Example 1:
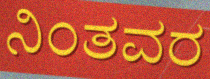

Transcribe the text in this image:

ನಿಂತವರ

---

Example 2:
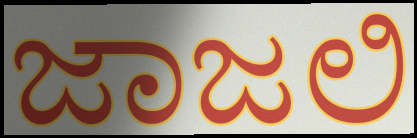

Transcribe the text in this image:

ಜಾಜಲಿ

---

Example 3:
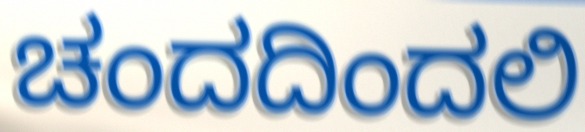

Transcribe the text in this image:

ಚಂದದಿಂದಲಿ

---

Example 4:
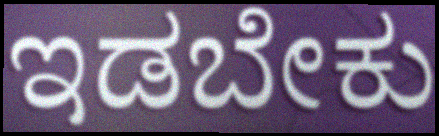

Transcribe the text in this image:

ಇಡಬೇಕು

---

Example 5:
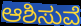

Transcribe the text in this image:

ಆಶಿಸುವೆ